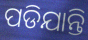
ପଡିଯାନ୍ତି